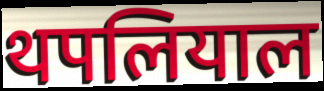
थपलियाल